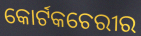
କୋର୍ଟକଚେରୀର